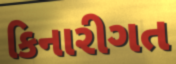
કિનારીગત